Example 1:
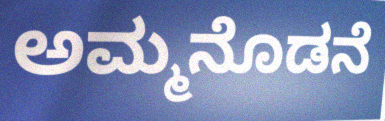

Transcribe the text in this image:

ಅಮ್ಮನೊಡನೆ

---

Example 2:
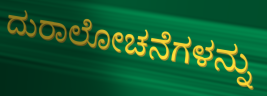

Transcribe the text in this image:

ದುರಾಲೋಚನೆಗಳನ್ನು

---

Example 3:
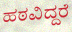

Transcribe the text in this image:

ಹಠವಿದ್ದರೆ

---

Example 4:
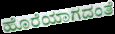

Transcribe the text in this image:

ಹೊರೆಯಾಗದಂತೆ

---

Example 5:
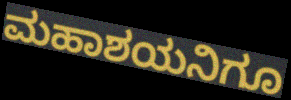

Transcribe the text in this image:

ಮಹಾಶಯನಿಗೂ